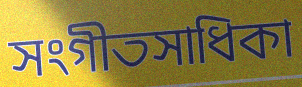
সংগীতসাধিকা